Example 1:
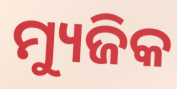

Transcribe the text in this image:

ମ୍ୟୁଜିକ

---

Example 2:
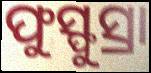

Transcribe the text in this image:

ଫୁସ୍ଫୁସ୍ରା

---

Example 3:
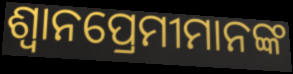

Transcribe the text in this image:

ଶ୍ଵାନପ୍ରେମୀମାନଙ୍କ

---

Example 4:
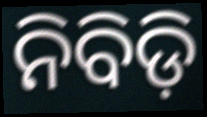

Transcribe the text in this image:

ନିବିଡ଼ି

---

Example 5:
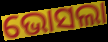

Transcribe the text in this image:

ଭୋସଲା